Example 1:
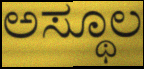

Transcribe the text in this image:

ಅಸ್ಥೂಲ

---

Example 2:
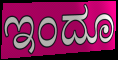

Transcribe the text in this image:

ಇಂದೂ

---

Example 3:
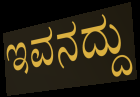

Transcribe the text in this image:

ಇವನದ್ದು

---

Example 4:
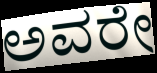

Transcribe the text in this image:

ಅವರೇ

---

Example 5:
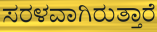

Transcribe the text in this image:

ಸರಳವಾಗಿರುತ್ತಾರೆ